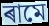
ৰামে